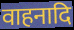
वाहनादि